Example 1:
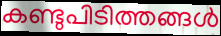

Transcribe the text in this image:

കണ്ടുപിടിത്തങ്ങൾ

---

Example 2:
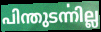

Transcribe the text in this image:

പിന്തുടൎന്നില്ല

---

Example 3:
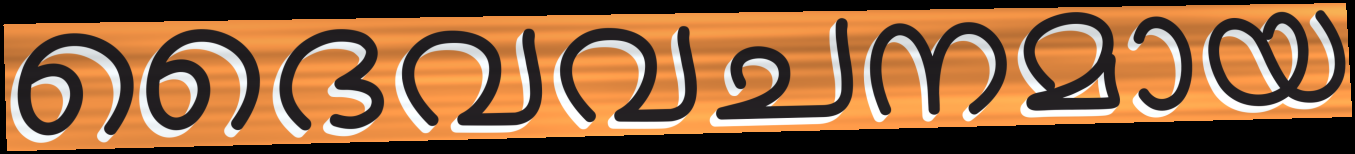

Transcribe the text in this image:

ദൈവവചനമായ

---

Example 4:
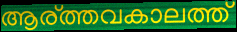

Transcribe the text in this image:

ആര്ത്തവകാലത്ത്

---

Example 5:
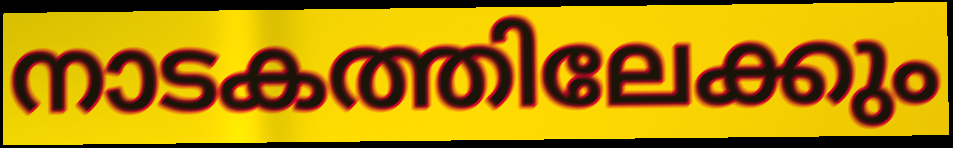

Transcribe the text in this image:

നാടകത്തിലേക്കും